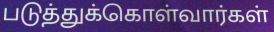
படுத்துக்கொள்வார்கள்